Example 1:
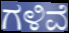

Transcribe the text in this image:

ಗಳಿವೆ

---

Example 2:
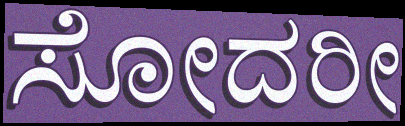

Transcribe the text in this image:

ಸೋದರೀ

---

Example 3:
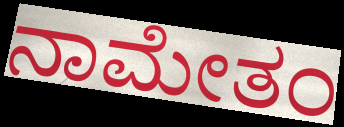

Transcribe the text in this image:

ನಾಮೇತಂ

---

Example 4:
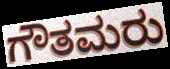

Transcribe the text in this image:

ಗೌತಮರು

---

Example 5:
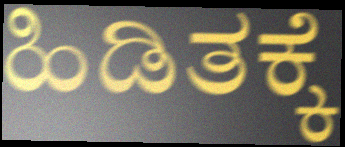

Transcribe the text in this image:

ಹಿಡಿತಕ್ಕೆ